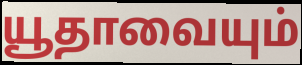
யூதாவையும்